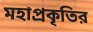
মহাপ্রকৃতির